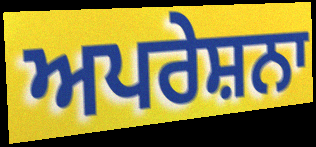
ਅਪਰੇਸ਼ਨਾ